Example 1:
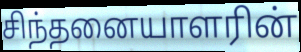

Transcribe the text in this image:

சிந்தனையாளரின்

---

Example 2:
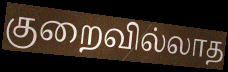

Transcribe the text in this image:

குறைவில்லாத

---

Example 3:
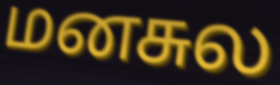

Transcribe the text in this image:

மனசுல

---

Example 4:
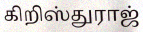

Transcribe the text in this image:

கிறிஸ்துராஜ்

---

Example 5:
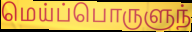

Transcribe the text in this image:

மெய்ப்பொருளுந்